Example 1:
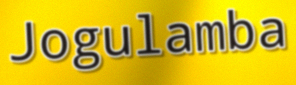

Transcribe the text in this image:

Jogulamba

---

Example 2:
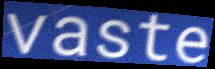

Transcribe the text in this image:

vaste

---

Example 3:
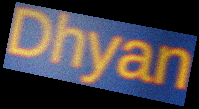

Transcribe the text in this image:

Dhyan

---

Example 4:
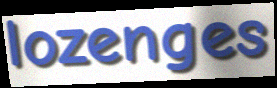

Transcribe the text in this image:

lozenges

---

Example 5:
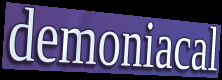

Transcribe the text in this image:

demoniacal